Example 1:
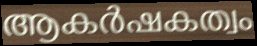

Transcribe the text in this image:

ആകർഷകത്വം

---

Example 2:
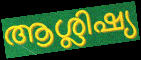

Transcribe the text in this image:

ആശ്ലിഷ്യ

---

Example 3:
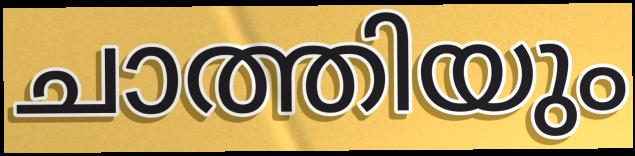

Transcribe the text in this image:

ചാത്തിയും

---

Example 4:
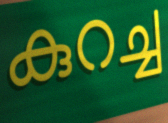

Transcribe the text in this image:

കുറച്ച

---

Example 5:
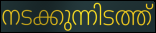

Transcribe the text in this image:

നടക്കുന്നിടത്ത്